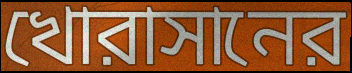
খোরাসানের